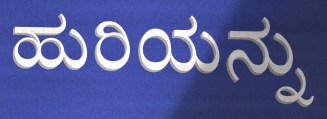
ಹುರಿಯನ್ನು